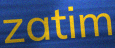
zatim